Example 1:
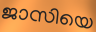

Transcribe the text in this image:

ജാസിയെ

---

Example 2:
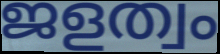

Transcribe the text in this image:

ജളത്വം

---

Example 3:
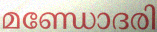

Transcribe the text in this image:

മണ്ഡോദരി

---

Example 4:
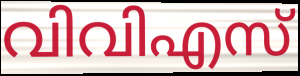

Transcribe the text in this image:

വിവിഎസ്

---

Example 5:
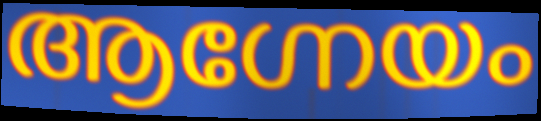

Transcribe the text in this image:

ആഗ്നേയം